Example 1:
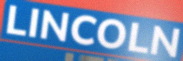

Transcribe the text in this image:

LINCOLN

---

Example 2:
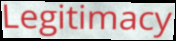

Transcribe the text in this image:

Legitimacy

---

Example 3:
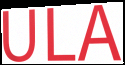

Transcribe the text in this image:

ULA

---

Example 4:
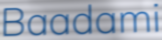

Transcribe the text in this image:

Baadami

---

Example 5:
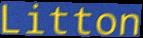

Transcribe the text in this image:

Litton